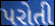
પરોતી